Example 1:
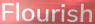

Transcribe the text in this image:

Flourish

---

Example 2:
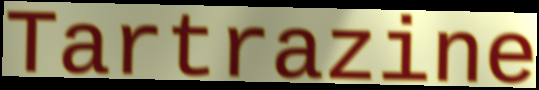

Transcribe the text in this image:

Tartrazine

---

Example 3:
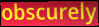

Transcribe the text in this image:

obscurely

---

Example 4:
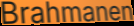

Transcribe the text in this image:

Brahmanen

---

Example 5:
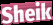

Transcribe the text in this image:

Sheik